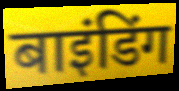
बाइंडिंग